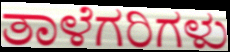
ತಾಳೆಗರಿಗಳು